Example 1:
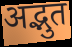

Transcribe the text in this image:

अद्भुत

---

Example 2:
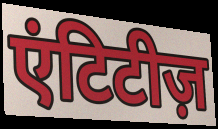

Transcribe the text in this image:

एंटिटीज़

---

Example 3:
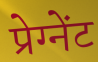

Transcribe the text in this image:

प्रेग्‍नेंट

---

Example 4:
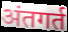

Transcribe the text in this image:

अंतगर्त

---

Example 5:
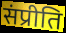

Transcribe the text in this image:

संप्रीति